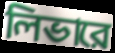
লিভারে